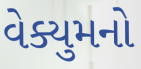
વેક્યુમનો